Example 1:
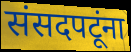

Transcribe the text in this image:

संसदपटूंना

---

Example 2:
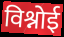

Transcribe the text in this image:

विश्नोई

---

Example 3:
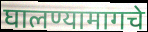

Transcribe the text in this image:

घालण्यामागचे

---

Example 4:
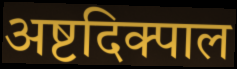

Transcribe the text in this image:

अष्टदिक्पाल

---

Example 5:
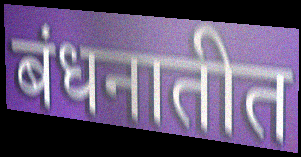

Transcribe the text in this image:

बंधनातीत